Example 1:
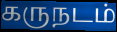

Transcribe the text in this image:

கருநடம்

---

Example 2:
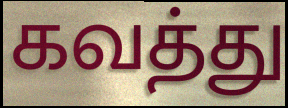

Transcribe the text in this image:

கவத்து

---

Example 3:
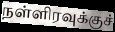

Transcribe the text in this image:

நள்ளிரவுக்குச்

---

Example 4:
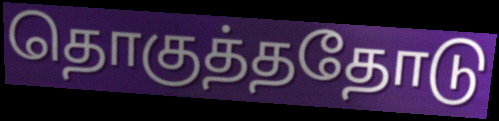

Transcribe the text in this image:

தொகுத்ததோடு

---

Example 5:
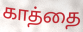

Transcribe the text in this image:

காத்தை